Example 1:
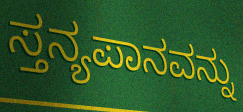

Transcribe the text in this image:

ಸ್ತನ್ಯಪಾನವನ್ನು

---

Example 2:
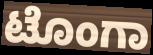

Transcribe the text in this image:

ಟೊಂಗಾ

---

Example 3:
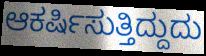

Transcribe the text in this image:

ಆಕರ್ಷಿಸುತ್ತಿದ್ದುದು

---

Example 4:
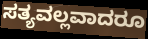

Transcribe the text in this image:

ಸತ್ಯವಲ್ಲವಾದರೂ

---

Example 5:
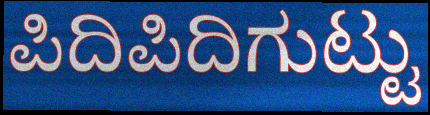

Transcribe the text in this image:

ಪಿದಿಪಿದಿಗುಟ್ಟು